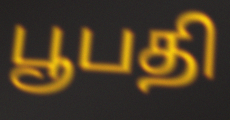
பூபதி